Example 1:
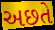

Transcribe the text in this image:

અછતે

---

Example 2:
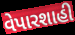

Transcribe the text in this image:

વેપારશાહી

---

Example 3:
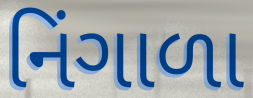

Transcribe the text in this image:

નિંગાળા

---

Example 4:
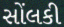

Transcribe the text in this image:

સોંલકી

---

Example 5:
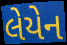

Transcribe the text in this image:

લેયેન